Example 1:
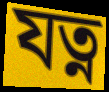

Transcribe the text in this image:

যত্ন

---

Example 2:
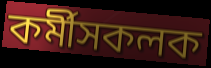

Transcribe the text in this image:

কৰ্মীসকলক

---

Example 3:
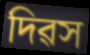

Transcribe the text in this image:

দিৱস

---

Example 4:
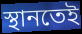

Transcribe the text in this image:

স্থানতেই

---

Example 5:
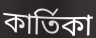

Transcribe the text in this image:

কাৰ্তিকা